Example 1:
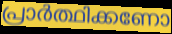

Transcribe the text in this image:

പ്രാർത്ഥിക്കണോ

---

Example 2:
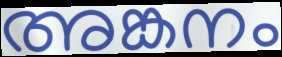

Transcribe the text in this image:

അങ്കനം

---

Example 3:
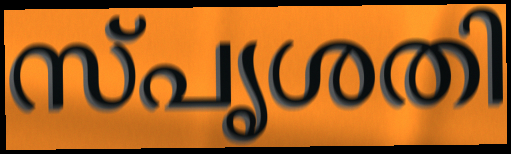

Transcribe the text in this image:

സ്പൃശതി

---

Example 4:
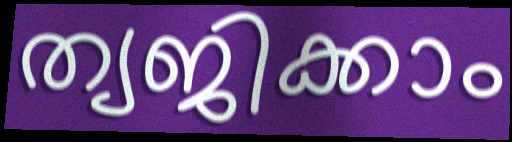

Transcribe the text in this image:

ത്യജിക്കാം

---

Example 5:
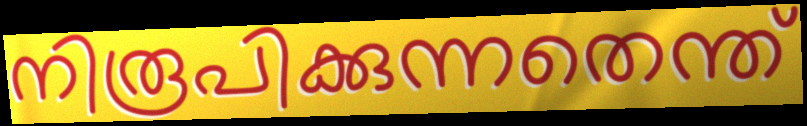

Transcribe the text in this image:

നിരൂപിക്കുന്നതെന്ത്